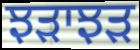
ਝੜਾਝੜ